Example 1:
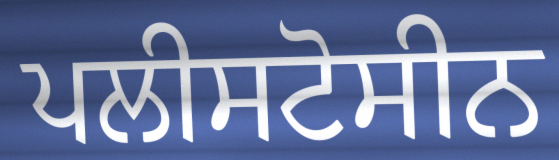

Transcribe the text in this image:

ਪਲੀਸਟੋਸੀਨ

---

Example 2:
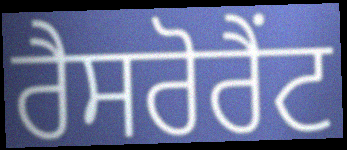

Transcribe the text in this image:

ਰੈਸਰੋਰੈਂਟ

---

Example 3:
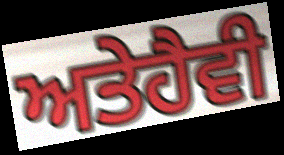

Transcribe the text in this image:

ਅਤੇਹੈਵੀ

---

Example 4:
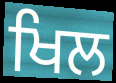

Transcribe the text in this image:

ਖਿਲ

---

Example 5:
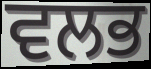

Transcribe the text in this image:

ਵਲਭ